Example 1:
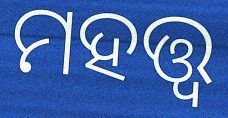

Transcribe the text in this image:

ମହତ୍ତ୍ବ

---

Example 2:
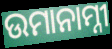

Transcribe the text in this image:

ଉମାନାମ୍ନୀ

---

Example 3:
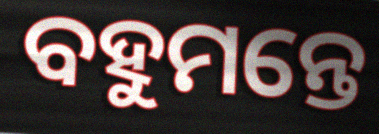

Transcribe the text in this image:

ବହୁମନ୍ତେ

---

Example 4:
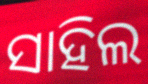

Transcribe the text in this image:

ସାହିଲ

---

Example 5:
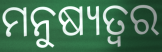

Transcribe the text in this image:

ମନୁଷ୍ୟତ୍ବର